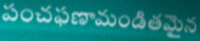
పంచఫణామండితమైన